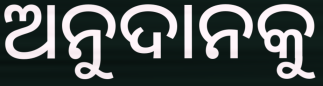
ଅନୁଦାନକୁ